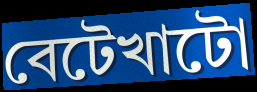
বেটেখাটো